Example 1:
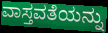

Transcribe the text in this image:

ವಾಸ್ತವತೆಯನ್ನು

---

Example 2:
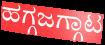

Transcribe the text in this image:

ಹಗ್ಗಜಗ್ಗಾಟ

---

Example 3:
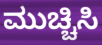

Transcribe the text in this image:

ಮುಚ್ಚಿಸಿ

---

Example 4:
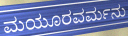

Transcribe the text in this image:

ಮಯೂರವರ್ಮನು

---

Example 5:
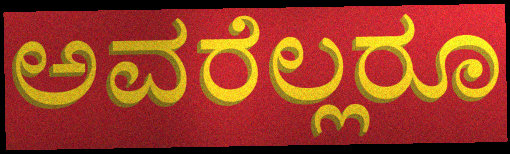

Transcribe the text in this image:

ಅವರೆಲ್ಲರೂ